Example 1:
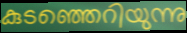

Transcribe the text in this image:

കുടഞ്ഞെറിയുന്നു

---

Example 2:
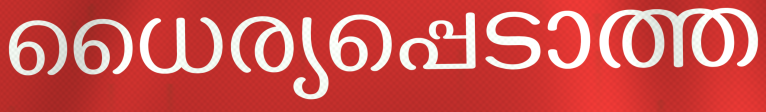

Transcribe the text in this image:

ധൈര്യപ്പെടാത്ത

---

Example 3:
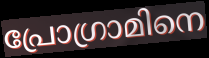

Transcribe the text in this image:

പ്രോഗ്രാമിനെ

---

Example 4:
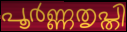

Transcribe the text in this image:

പൂർണ്ണതൃപ്തി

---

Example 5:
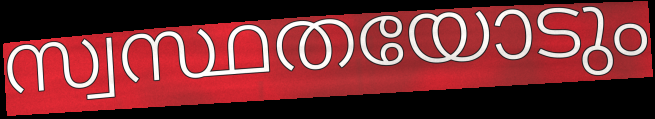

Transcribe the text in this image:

സ്വസ്ഥതയോടും